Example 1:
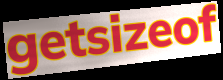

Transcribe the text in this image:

getsizeof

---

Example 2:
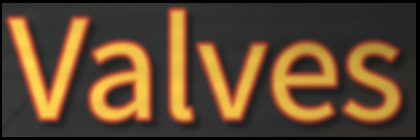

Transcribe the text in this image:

Valves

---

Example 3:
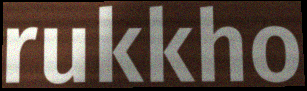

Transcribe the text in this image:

rukkho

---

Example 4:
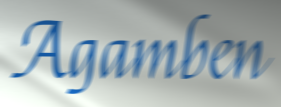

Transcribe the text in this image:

Agamben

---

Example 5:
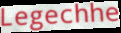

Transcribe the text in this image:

Legechhe